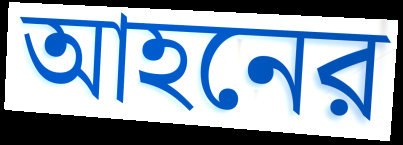
আহনের